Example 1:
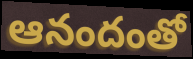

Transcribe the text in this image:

ఆనందంతో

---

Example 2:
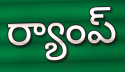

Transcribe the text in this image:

ర్యాంప్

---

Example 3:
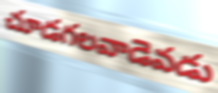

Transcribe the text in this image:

చూడగలవాడెవడు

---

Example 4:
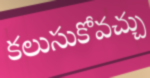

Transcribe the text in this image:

కలుసుకోవచ్చు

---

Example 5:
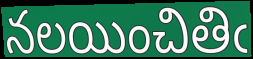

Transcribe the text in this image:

నలయించితిఁ